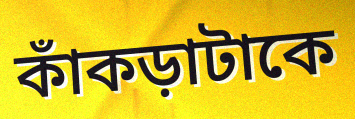
কাঁকড়াটাকে